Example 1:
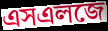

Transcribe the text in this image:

এসএলজে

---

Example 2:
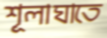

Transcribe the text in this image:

শূলাঘাতে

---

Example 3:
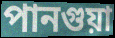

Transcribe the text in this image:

পানগুয়া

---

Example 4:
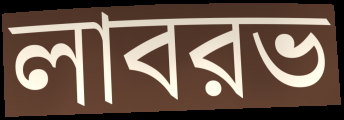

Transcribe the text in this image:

লাবরভ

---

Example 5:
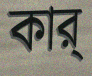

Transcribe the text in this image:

কার্